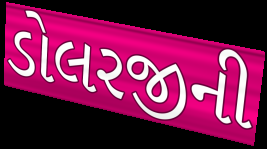
ડોલરજીની